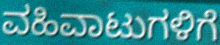
ವಹಿವಾಟುಗಳಿಗೆ